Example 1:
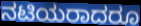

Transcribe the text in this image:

ನಟಿಯರಾದರೂ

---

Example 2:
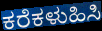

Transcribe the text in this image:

ಕರೆಕಳುಹಿಸಿ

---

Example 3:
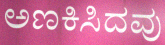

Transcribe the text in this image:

ಅಣಕಿಸಿದವು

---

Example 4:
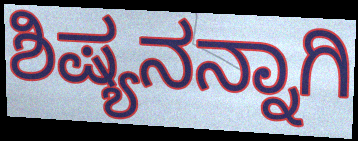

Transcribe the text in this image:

ಶಿಷ್ಯನನ್ನಾಗಿ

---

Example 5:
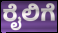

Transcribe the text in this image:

ರೈಲಿಗೆ